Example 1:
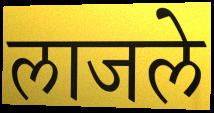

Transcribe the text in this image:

लाजले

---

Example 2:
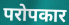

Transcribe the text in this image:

परोपकार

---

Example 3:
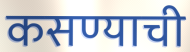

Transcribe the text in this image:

कसण्याची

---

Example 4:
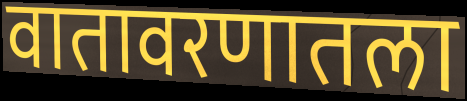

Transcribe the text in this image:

वातावरणातला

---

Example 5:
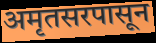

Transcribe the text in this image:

अमृतसरपासून